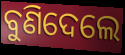
ବୁଣିଦେଲେ